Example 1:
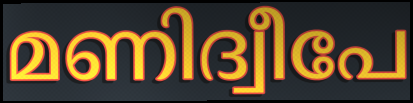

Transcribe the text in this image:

മണിദ്വീപേ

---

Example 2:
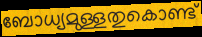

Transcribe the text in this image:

ബോധ്യമുള്ളതുകൊണ്ട്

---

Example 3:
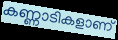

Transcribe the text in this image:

കണ്ണാടികളാണ്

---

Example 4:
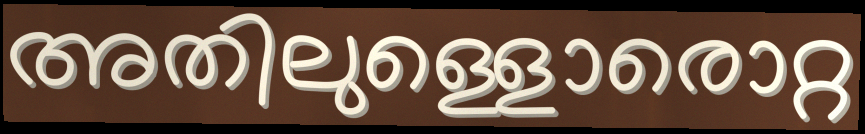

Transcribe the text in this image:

അതിലുള്ളൊരൊറ്റ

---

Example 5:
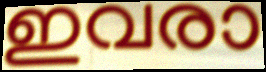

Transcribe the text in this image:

ഇവരാ